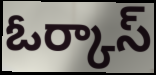
ఓర్కాస్